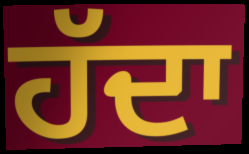
ਹੱਦਾ